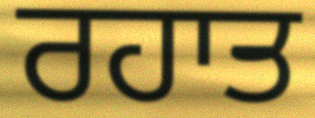
ਰਹਾਤ